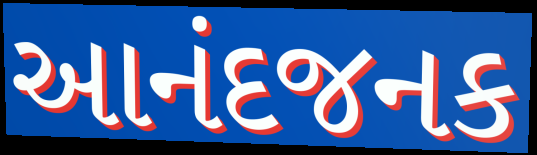
આનંદજનક